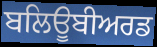
ਬਲਿਊਬੀਅਰਡ